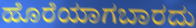
ಹೊರೆಯಾಗಬಾರದು